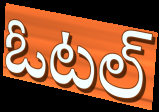
ఓటల్